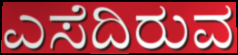
ಎಸೆದಿರುವ